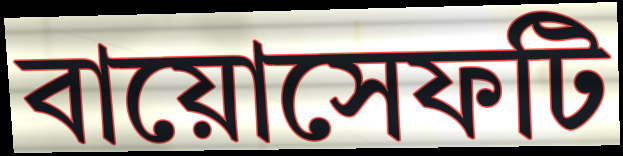
বায়োসেফটি